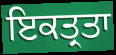
ਇਕਤ੍ਰਤਾ